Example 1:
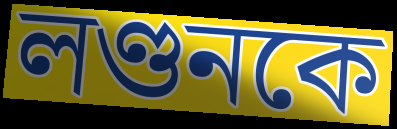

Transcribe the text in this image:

লণ্ডনকে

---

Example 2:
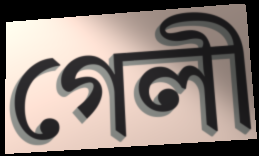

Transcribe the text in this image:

গেলী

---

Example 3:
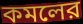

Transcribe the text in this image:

কমলের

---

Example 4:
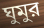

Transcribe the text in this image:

ঘুমুর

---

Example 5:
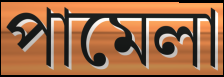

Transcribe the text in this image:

পামেলা